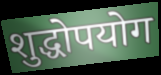
शुद्धोपयोग